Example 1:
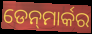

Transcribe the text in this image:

ଡେନ୍‍ମାର୍କର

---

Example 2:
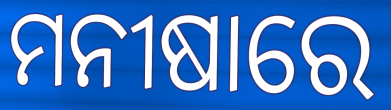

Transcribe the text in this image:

ମନୀଷାରେ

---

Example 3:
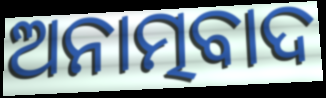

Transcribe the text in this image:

ଅନାତ୍ମବାଦ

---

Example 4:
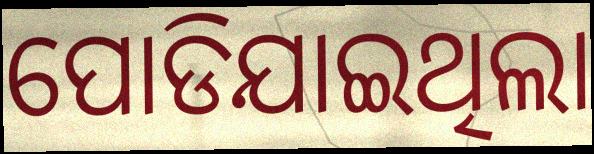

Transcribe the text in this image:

ପୋଡିଯାଇଥିଲା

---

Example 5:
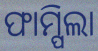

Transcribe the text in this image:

ଫାମ୍ପିଲା